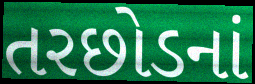
તરછોડનાં